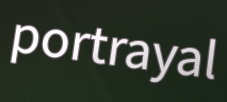
portrayal